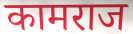
कामराज